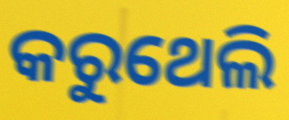
କରୁଥେଲି